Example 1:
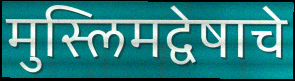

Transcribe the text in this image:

मुस्लिमद्वेषाचे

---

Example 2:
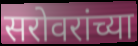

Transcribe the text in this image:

सरोवरांच्या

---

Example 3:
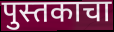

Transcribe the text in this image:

पुस्तकाचा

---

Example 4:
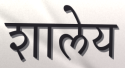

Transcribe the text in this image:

शालेय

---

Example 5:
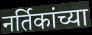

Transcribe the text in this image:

नर्तिकांच्या